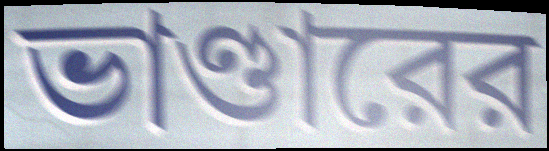
ভাণ্ডারের